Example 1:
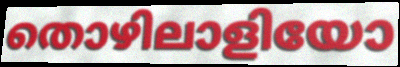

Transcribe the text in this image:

തൊഴിലാളിയോ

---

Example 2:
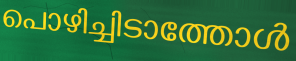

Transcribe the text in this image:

പൊഴിച്ചിടാത്തോൾ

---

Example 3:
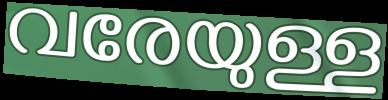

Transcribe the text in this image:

വരേയുള്ള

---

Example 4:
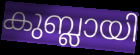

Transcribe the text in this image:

കുബ്ലായി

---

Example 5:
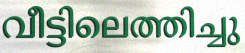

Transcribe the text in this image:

വീട്ടിലെത്തിച്ചു